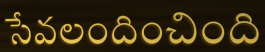
సేవలందించింది